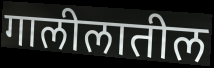
गालीलातील